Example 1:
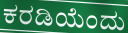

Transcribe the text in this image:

ಕರಡಿಯೆಂದು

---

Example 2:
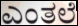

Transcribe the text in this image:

ಎಂತಲೆ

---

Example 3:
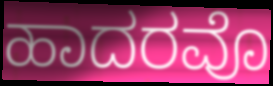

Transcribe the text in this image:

ಹಾದರವೊ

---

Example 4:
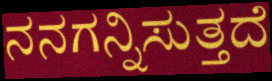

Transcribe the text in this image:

ನನಗನ್ನಿಸುತ್ತದೆ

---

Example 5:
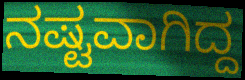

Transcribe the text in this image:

ನಷ್ಟವಾಗಿದ್ದ